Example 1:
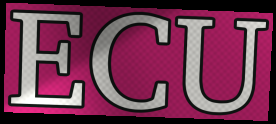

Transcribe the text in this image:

ECU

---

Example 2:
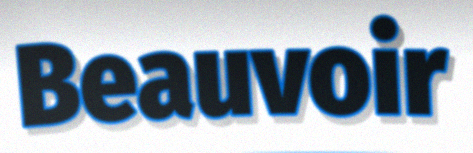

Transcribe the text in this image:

Beauvoir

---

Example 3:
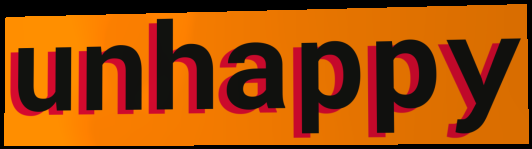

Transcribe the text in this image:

unhappy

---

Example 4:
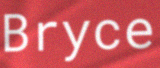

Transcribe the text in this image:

Bryce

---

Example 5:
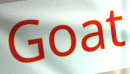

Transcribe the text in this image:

Goat